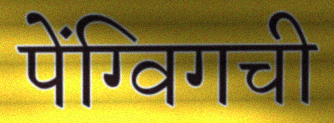
पेंग्विगची